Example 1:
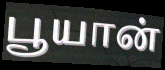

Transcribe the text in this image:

பூயான்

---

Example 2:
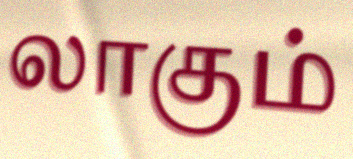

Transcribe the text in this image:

லாகும்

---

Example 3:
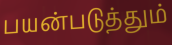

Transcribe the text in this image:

பயன்படுத்தும்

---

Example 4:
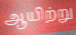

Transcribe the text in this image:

ஆயிற்று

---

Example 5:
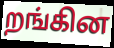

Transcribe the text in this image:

றங்கின